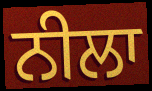
ਨੀਲਾ